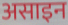
असाइन